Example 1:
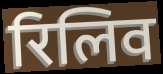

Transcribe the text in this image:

रिलिव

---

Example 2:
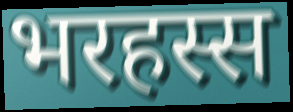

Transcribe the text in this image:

भरहस्स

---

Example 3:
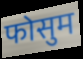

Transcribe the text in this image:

फोसुम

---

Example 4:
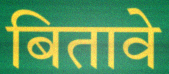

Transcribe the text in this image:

बितावे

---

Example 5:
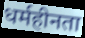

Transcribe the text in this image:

धर्महीनता